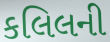
કલિલની